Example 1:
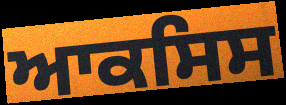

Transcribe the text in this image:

ਆਕਸਿਸ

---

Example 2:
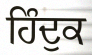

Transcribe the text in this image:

ਹਿੰਦੁਕ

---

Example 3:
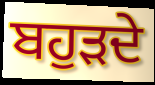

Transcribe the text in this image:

ਬਹੁੜਦੇ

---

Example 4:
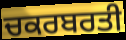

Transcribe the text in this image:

ਚਕਰਬਰਤੀ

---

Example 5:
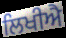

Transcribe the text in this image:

ਲਿਖੀਐ